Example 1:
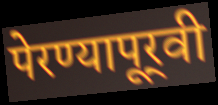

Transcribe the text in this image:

पेरण्यापूर्वी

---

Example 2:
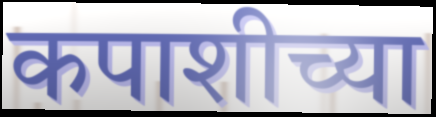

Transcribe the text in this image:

कपाशीच्या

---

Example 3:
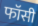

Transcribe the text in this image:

फॉसी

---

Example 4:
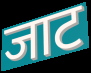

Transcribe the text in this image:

जाट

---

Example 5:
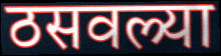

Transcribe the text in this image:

ठसवल्या